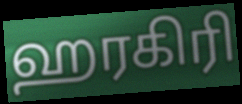
ஹரகிரி